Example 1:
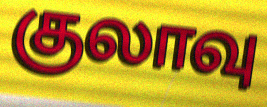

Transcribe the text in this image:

குலாவு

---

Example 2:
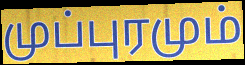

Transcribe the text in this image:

முப்புரமும்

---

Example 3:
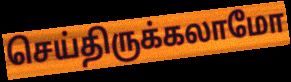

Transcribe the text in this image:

செய்திருக்கலாமோ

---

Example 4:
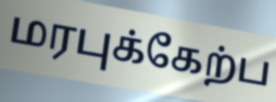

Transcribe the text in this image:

மரபுக்கேற்ப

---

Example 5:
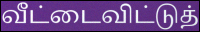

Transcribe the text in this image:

வீட்டைவிட்டுத்